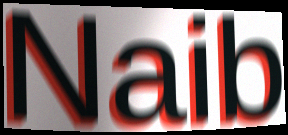
Naib